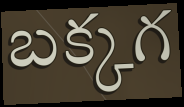
బక్కగ